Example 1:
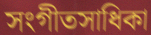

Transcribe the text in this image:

সংগীতসাধিকা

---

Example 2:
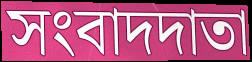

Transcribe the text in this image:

সংবাদদাতা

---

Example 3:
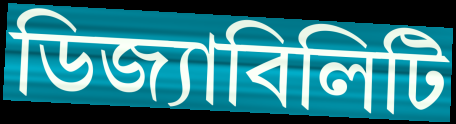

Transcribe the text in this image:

ডিজ্যাবিলিটি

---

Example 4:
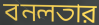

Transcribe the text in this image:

বনলতার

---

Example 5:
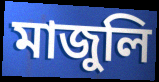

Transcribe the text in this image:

মাজুলি